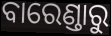
ବାରେଣ୍ଡାରୁ